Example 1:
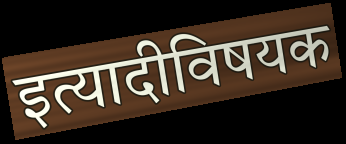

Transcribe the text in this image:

इत्यादीविषयक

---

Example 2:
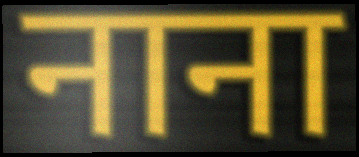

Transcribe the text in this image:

नाना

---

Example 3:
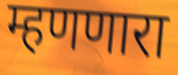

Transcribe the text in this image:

म्हणणारा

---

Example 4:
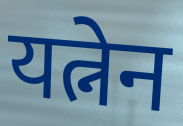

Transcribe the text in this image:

यत्नेन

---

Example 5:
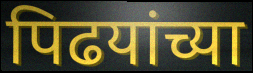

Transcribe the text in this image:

पिढयांच्या